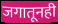
जगातूनही